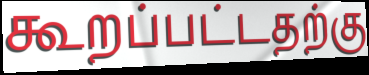
கூறப்பட்டதற்கு